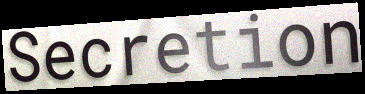
Secretion